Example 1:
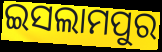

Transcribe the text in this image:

ଇସଲାମପୁର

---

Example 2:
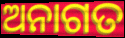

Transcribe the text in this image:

ଅନାଗତ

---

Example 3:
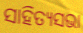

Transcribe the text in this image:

ସାହିତ୍ୟସଭା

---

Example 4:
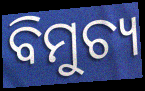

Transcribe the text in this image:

ବିମୁଚ୍ୟ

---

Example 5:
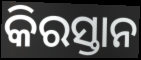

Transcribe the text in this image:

କିରସ୍ତାନ